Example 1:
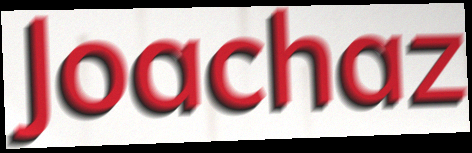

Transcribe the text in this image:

Joachaz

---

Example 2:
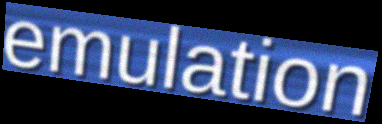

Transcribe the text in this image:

emulation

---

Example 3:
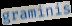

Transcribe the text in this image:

graminis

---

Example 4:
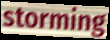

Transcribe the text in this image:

storming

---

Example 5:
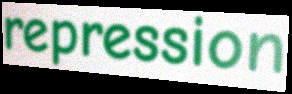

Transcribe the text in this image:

repression